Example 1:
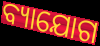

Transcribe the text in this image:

ବ୍ୟାଯୋଗ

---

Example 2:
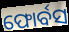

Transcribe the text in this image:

ଫୋର୍ବସ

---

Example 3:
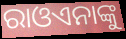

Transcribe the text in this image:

ରାଓଏନାଙ୍କୁ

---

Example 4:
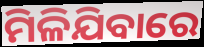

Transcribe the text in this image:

ମିଳିଯିବାରେ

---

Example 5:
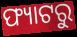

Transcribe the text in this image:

ଫ୍ୟାଟରୁ